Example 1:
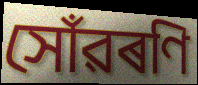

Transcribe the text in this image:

সোঁৱৰণি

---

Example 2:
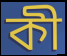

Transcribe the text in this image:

কী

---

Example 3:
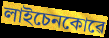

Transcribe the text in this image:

লাইচেনকোৱে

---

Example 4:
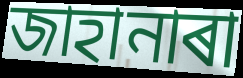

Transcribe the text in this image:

জাহানাৰা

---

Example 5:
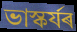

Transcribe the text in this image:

ভাস্কৰ্যৰ